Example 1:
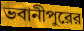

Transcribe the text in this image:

ভবানীপুরের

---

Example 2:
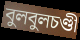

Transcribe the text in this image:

বুলবুলচণ্ডী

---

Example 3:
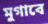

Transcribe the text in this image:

মুগাবে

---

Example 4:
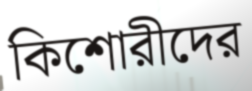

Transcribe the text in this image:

কিশোরীদের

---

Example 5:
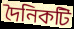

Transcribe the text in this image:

দৈনিকটি